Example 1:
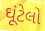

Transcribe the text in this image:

ઘૂંટેલો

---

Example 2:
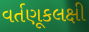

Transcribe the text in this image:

વર્તણૂકલક્ષી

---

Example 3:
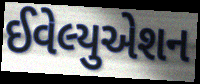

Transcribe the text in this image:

ઈવેલ્યુએશન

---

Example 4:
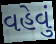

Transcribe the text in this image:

વહેવું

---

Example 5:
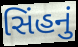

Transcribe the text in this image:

સિંહનું